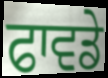
ਫਾਵਡੇ